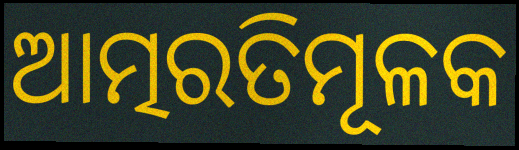
ଆତ୍ମରତିମୂଳକ